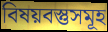
বিষয়বস্তুসমূহ